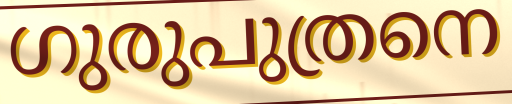
ഗുരുപുത്രനെ